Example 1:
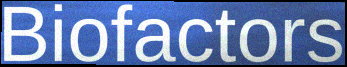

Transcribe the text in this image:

Biofactors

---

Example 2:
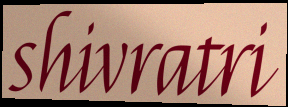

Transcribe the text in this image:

shivratri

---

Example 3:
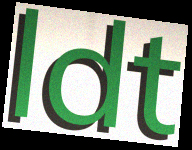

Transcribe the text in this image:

ldt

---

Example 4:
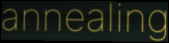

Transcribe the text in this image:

annealing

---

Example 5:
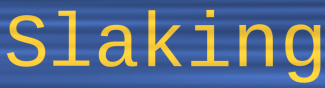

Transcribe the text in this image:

Slaking